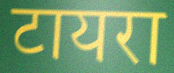
टायरा